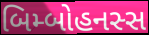
બિમ્બોહનસ્સ